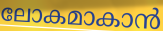
ലോകമാകാൻ